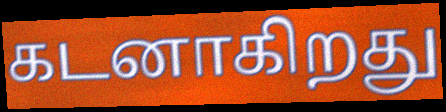
கடனாகிறது